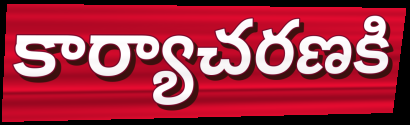
కార్యాచరణకి